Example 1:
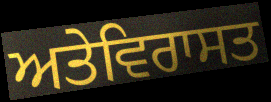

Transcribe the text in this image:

ਅਤੇਵਿਰਾਸਤ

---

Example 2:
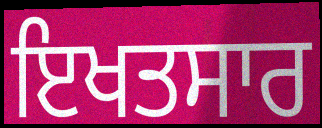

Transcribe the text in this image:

ਇਖਤਸਾਰ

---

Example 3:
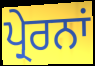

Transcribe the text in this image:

ਪ੍ਰੇਰਨਾਂ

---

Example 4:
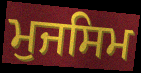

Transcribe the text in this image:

ਮੁਜਸਿਮ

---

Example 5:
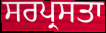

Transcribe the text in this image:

ਸਰਪ੍ਰਸਤਾ